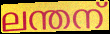
ലന്തന്